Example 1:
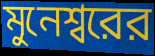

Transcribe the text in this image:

মুনেশ্বরের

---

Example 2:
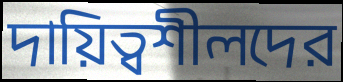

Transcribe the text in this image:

দায়িত্বশীলদের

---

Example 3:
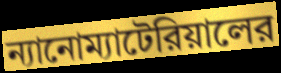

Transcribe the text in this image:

ন্যানোম্যাটেরিয়ালের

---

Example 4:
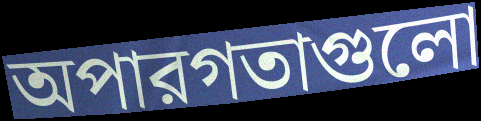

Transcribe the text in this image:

অপারগতাগুলো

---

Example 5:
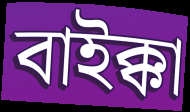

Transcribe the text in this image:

বাইক্কা